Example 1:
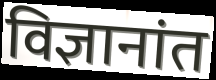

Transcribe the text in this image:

विज्ञानांत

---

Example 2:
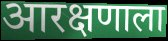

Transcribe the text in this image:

आरक्षणाला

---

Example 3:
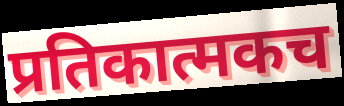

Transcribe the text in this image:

प्रतिकात्मकच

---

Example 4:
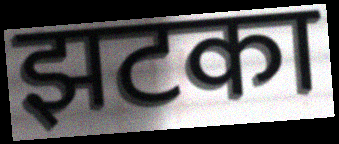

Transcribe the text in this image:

झटका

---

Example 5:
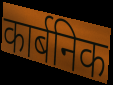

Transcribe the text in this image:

कार्बनिक